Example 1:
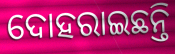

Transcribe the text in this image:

ଦୋହରାଇଛନ୍ତି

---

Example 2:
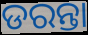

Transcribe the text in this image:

ଡରନ୍ତା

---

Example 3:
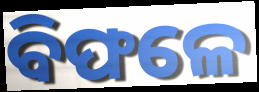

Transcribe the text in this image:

ବିଫଳେ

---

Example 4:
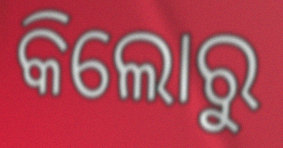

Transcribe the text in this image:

କିଲୋରୁ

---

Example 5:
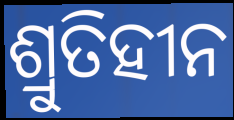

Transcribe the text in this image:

ଶ୍ରୁତିହୀନ